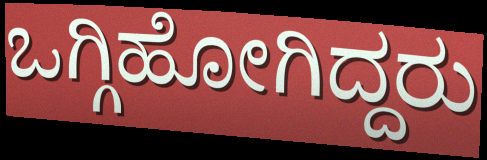
ಒಗ್ಗಿಹೋಗಿದ್ದರು